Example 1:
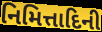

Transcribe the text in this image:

નિમિત્તાદિની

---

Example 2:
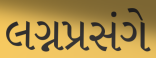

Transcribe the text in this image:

લગ્નપ્રસંગે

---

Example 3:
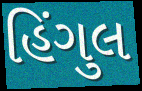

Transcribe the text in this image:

હિંગુલ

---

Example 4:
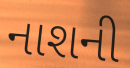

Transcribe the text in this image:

નાશની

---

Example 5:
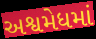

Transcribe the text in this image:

અશ્વમેધમાં